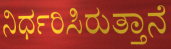
ನಿರ್ಧರಿಸಿರುತ್ತಾನೆ